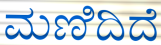
ಮಣಿದಿದೆ